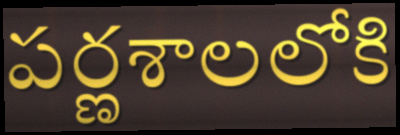
పర్ణశాలలోకి